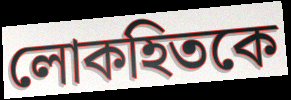
লোকহিতকে